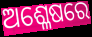
ଅଶ୍ଳେଷରେ